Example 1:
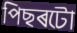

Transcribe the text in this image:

পিছৰটো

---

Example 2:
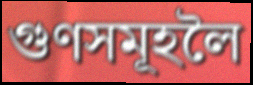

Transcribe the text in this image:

গুণসমূহলৈ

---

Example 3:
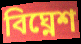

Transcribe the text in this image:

বিঘ্নেশ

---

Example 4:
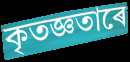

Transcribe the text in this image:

কৃতজ্ঞতাৰে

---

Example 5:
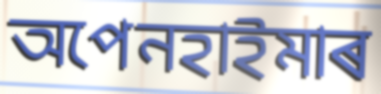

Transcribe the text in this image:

অপেনহাইমাৰ